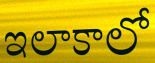
ఇలాకాలో